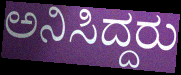
ಅನಿಸಿದ್ದರು